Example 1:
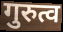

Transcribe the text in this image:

गुरुत्व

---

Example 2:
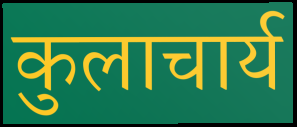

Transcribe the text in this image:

कुलाचार्य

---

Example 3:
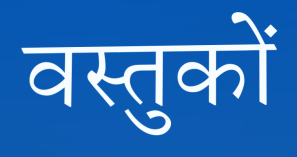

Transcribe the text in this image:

वस्तुकों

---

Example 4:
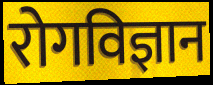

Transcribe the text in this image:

रोगविज्ञान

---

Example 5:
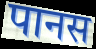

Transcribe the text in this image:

पानस